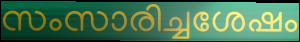
സംസാരിച്ചശേഷം